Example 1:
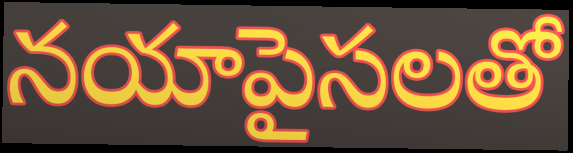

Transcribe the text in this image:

నయాపైసలతో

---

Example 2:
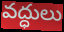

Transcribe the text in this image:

వద్ధులు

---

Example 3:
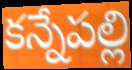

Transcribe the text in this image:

కన్నేపల్లి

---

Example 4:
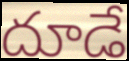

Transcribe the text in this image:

దూడే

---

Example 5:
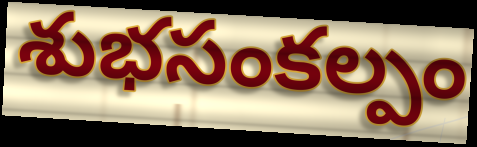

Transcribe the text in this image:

శుభసంకల్పం